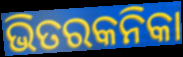
ଭିତରକନିକା